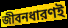
জীবনধারণই